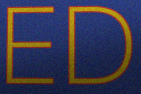
ED